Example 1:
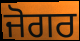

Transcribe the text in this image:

ਜੋਗਰ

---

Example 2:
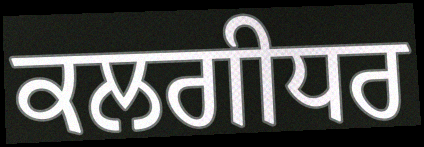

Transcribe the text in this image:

ਕਲਗੀਧਰ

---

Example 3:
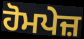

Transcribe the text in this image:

ਹੋਮਪੇਜ਼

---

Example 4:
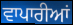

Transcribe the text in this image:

ਵਾਪਾਰੀਆਂ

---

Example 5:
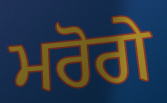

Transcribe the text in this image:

ਮਰੋਗੇ